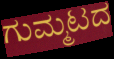
ಗುಮ್ಮಟದ